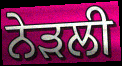
ਨੇੜਲੀ